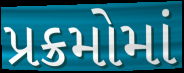
પ્રક્રમોમાં